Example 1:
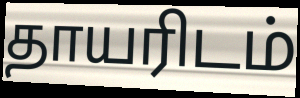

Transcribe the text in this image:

தாயரிடம்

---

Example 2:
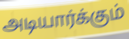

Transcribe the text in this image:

அடியார்க்கும்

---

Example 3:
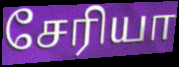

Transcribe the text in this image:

சேரியா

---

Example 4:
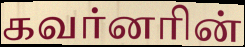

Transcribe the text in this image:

கவர்னரின்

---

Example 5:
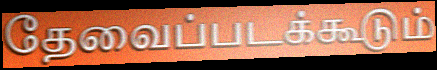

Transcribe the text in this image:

தேவைப்படக்கூடும்